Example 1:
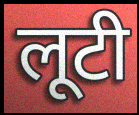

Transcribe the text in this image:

लूटी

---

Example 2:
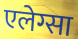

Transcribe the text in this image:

एलेग्सा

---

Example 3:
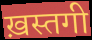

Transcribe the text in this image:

ख़स्तगी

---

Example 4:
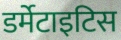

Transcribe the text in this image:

डर्मेटाइटिस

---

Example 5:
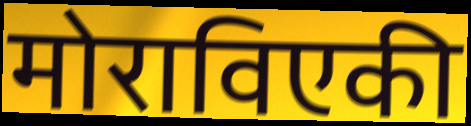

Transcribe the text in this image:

मोराविएकी